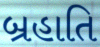
બ્રહાતિ